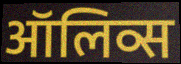
ऑलिव्स